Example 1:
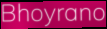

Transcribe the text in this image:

Bhoyrano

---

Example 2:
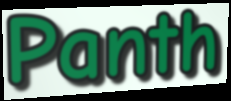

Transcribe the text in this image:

Panth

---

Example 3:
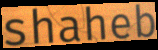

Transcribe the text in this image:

shaheb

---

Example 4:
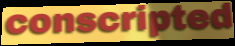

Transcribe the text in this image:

conscripted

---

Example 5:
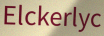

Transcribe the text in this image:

Elckerlyc